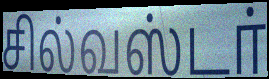
சில்வஸ்டர்